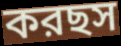
করছস